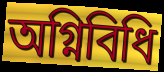
অগ্নিবিধি